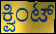
ಕ್ವಿಂಟ್